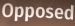
Opposed